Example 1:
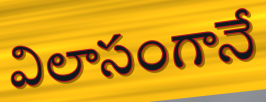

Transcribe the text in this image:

విలాసంగానే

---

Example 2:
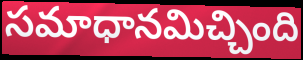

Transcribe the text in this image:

సమాధానమిచ్చింది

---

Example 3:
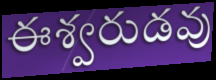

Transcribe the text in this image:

ఈశ్వరుడవు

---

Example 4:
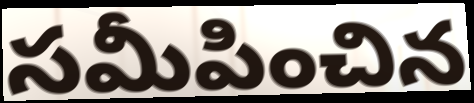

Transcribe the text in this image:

సమీపించిన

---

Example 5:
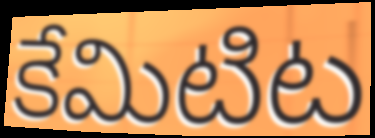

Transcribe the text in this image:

కేమిటిట